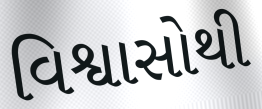
વિશ્વાસોથી